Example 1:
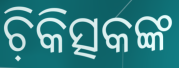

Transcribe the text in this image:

ଚ଼ିକିତ୍ସକଙ୍କ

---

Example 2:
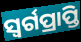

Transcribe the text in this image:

ସ୍ଵର୍ଗପ୍ରାପ୍ତି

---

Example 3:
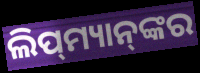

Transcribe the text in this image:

ଲିପ୍‌ମ୍ୟାନ୍‌ଙ୍କର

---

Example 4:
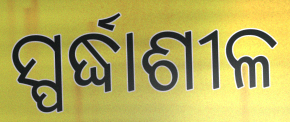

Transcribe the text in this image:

ସ୍ପର୍ଦ୍ଧାଶୀଳ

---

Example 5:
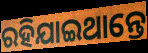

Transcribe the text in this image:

ରହିଯାଇଥାନ୍ତେ